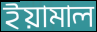
ইয়ামাল